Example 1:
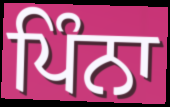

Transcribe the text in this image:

ਪਿੰਨਾ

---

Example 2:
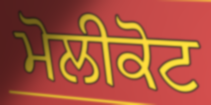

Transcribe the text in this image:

ਮੋਲੀਕੋਟ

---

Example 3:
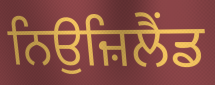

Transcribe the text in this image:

ਨਿਉਜ਼ਿਲੈਂਡ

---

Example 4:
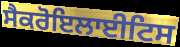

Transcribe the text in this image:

ਸੈਕਰੋਇਲਾਈਟਿਸ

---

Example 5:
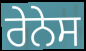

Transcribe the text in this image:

ਰੇਨੇਸ